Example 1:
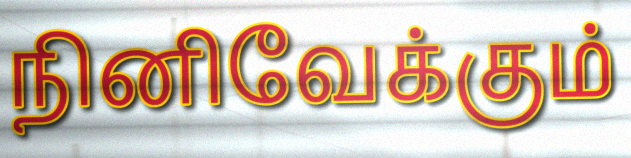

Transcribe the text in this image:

நினிவேக்கும்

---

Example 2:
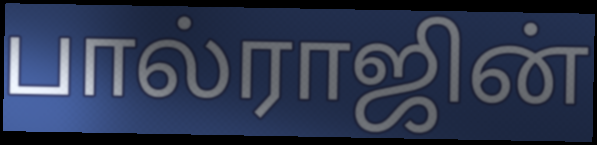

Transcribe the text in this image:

பால்ராஜின்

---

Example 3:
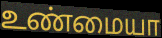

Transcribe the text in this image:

உண்மையா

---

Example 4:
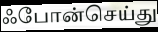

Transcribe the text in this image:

ஃபோன்செய்து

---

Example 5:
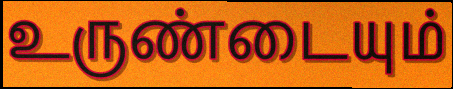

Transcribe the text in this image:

உருண்டையும்